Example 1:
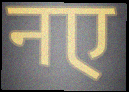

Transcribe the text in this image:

नए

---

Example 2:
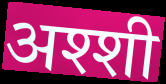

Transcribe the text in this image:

अश्शी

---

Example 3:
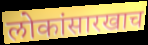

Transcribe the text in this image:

लोकांसारखाच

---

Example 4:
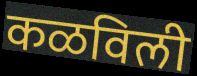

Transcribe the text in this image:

कळविली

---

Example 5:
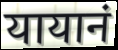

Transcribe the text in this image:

यायानं